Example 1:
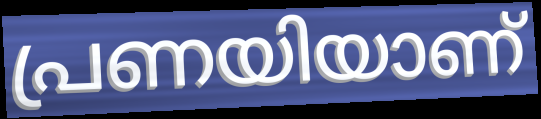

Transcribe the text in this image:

പ്രണയിയാണ്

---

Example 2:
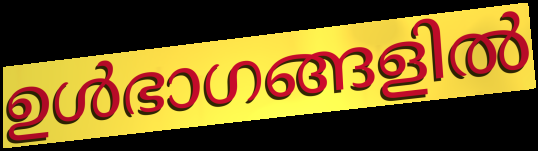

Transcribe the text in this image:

ഉൾഭാഗങ്ങളിൽ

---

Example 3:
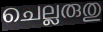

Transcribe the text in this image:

ചെല്ലരുതു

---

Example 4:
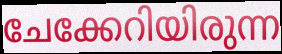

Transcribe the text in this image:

ചേക്കേറിയിരുന്ന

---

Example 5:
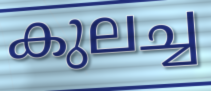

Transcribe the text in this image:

കുലച്ച